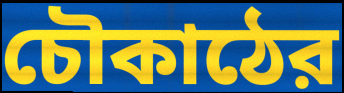
চৌকাঠের